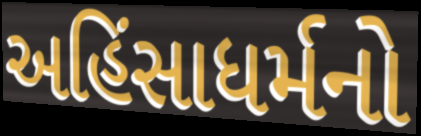
અહિંસાધર્મનો